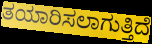
ತಯಾರಿಸಲಾಗುತ್ತಿದೆ